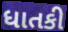
ધાતકી